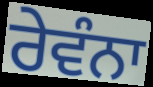
ਰੇਵੰਨਾ